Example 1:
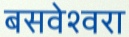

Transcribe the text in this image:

बसवेश्वरा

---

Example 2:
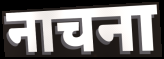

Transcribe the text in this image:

नाचना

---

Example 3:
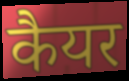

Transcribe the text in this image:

कैयर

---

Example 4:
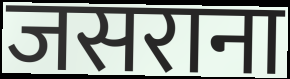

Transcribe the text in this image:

जसराना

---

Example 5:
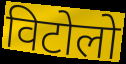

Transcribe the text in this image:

विटोलो